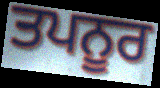
ਤਪਨੂਰ